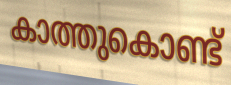
കാത്തുകൊണ്ട്